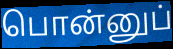
பொன்னுப்